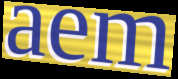
aem